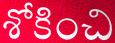
శోకించి